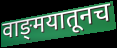
वाङ्मयातूनच